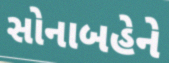
સોનાબહેને